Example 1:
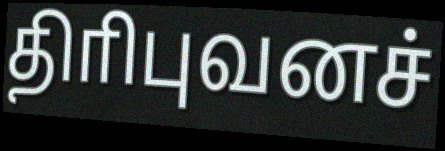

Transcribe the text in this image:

திரிபுவனச்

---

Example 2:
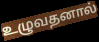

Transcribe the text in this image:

உழுவதனால்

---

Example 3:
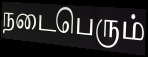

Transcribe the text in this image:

நடைபெரும்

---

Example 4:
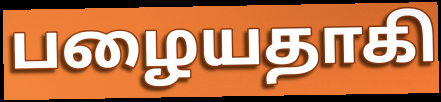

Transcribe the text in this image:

பழையதாகி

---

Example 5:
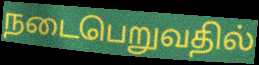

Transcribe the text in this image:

நடைபெறுவதில்